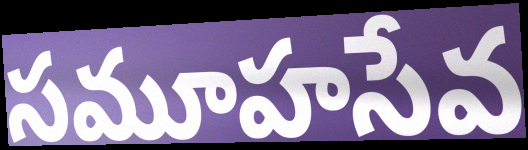
సమూహసేవ